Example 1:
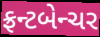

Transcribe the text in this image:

ફ્રન્ટબેન્ચર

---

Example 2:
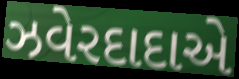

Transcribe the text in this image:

ઝવેરદાદાએ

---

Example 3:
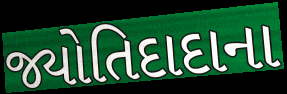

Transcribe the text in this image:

જ્યોતિદાદાના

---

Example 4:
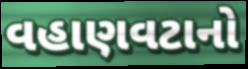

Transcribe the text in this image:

વહાણવટાનો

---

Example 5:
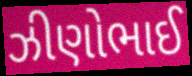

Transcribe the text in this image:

ઝીણોભાઈ